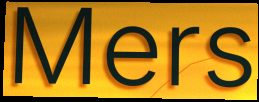
Mers